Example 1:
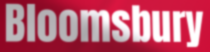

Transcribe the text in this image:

Bloomsbury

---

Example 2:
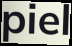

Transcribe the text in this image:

piel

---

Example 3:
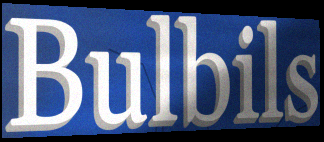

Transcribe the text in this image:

Bulbils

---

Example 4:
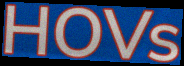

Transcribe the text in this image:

HOVs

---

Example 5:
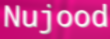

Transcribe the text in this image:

Nujood